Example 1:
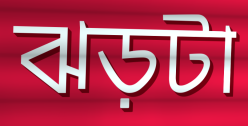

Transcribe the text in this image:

ঝড়টা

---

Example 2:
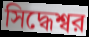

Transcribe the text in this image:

সিদ্ধেশ্বর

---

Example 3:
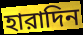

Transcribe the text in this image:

হারাদিন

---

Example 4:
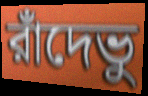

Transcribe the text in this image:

রাঁদেভু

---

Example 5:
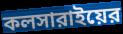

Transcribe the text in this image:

কলসারাইয়ের